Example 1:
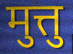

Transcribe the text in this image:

मुत्तु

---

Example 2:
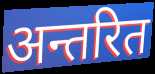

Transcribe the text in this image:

अन्तरित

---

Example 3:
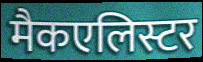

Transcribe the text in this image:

मैकएलिस्टर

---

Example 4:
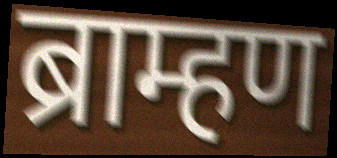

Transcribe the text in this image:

ब्राम्हण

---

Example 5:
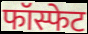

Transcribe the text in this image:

फॉस्फेट